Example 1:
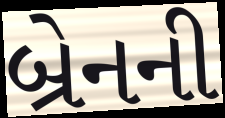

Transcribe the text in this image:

બ્રેનની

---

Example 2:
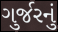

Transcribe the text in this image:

ગુર્જરનું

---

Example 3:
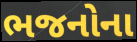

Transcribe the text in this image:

ભજનોના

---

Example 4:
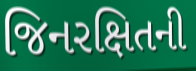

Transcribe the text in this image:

જિનરક્ષિતની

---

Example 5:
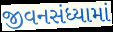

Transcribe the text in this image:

જીવનસંધ્યામાં